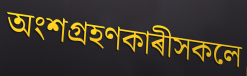
অংশগ্ৰহণকাৰীসকলে